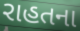
રાહતના